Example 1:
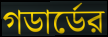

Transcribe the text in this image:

গডার্ডের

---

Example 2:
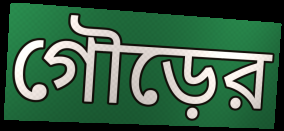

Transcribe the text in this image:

গৌড়ের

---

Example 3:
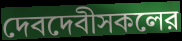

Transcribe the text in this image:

দেবদেবীসকলের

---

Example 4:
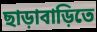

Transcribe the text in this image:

ছাড়াবাড়িতে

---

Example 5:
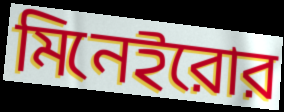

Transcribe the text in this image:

মিনেইরোর